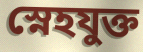
স্নেহযুক্ত